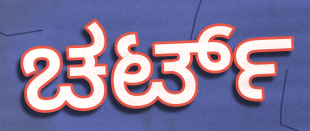
ಚರ್ಟ್